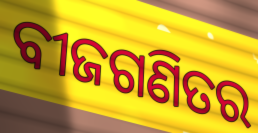
ବୀଜଗଣିତର